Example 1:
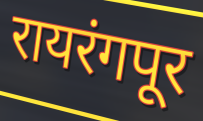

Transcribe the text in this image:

रायरंगपूर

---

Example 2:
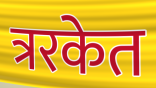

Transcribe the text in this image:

त्ररकेत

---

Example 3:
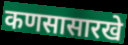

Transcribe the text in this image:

कणसासारखे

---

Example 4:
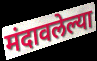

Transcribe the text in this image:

मंदावलेल्या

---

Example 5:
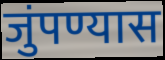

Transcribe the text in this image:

जुंपण्यास